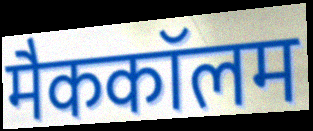
मैककॉलम